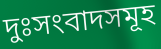
দুঃসংবাদসমূহ